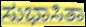
ಸುಭಾಸಿತಾ